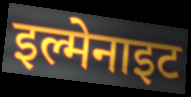
इल्मेनाइट